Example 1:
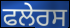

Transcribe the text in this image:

ਫਲੇਰਸ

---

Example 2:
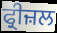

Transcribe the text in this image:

ਫ੍ਰੀਜ਼ਲ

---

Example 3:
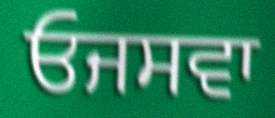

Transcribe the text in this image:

ਓਜਸਵਾ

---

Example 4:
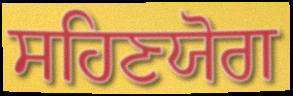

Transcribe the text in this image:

ਸਹਿਣਯੋਗ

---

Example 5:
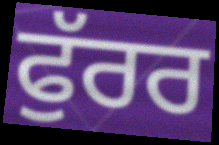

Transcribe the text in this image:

ਫੁੱਰਰ